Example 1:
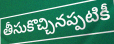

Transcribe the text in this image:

తీసుకొచ్చినప్పటికీ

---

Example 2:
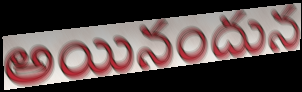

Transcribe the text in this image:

అయినందున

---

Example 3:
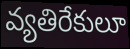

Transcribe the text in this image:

వ్యతిరేకులూ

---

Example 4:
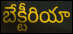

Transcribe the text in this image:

బేక్టీరియా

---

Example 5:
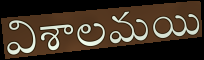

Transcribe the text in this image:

విశాలమయి